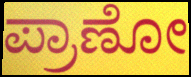
ಪ್ರಾಣೋ